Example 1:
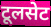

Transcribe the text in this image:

टूलसेट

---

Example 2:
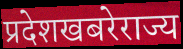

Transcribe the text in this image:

प्रदेशखबरेराज्य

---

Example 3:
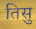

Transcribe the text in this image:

तिसु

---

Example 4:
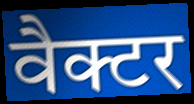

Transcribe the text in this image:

वैक्टर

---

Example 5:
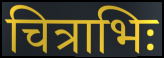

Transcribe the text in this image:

चित्राभिः